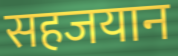
सहजयान